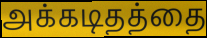
அக்கடிதத்தை